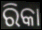
ରିକା